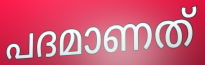
പദമാണത്